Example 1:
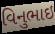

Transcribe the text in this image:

વિનુભાઇ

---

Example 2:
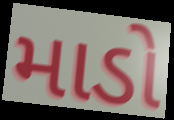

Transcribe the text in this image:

માડો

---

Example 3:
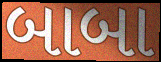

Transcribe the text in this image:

બાબા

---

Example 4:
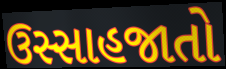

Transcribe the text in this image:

ઉસ્સાહજાતો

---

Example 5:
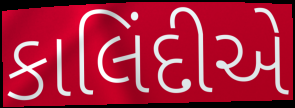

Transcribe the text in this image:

કાલિંદીએ